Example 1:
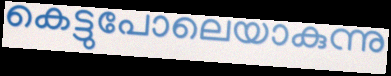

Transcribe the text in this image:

കെട്ടുപോലെയാകുന്നു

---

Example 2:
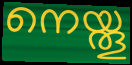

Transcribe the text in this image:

നെയ്തൂ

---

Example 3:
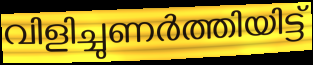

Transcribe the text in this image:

വിളിച്ചുണർത്തിയിട്ട്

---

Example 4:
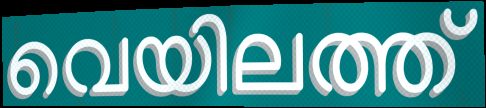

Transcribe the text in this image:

വെയിലത്ത്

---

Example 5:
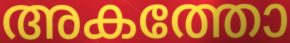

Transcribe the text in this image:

അകത്തോ